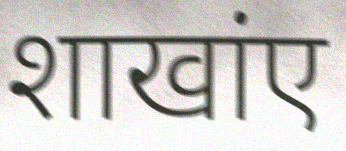
शाखांए